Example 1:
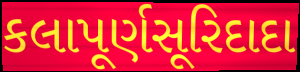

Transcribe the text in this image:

કલાપૂર્ણસૂરિદાદા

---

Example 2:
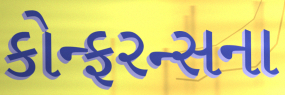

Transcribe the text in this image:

કોન્ફરન્સના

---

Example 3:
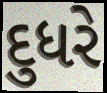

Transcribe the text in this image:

દુધરે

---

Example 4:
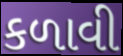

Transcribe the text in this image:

કળાવી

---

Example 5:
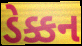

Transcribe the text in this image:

ડેક્કન